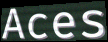
Aces